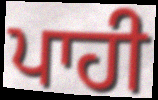
ਪਾਹੀ